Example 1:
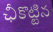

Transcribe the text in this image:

ఛీకొట్టిన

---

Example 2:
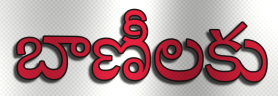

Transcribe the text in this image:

బాణీలకు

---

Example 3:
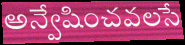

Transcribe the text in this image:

అన్వేషించవలసే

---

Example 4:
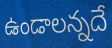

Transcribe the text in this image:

ఉండాలన్నదే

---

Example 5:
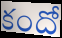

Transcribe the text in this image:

కందో